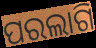
ପରଲାଗି